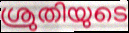
ശ്രുതിയുടെ